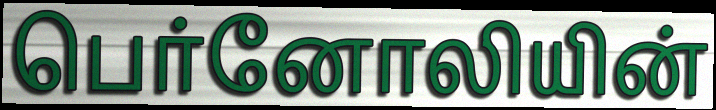
பெர்னோலியின்